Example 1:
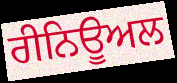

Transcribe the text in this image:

ਰੀਨਿਊਅਲ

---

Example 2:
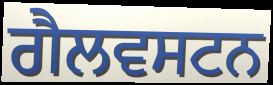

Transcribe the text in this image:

ਗੈਲਵਸਟਨ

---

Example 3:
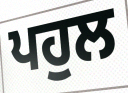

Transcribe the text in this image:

ਪਹੁਲ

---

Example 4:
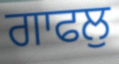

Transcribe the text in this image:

ਗਾਫਲੁ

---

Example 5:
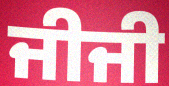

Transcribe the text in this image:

ਜੀਜੀ